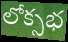
లోక్సభ